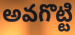
అవగొట్టి